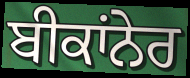
ਬੀਕਾਂਨੇਰ